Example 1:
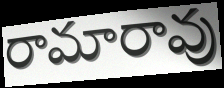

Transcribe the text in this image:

రామారావు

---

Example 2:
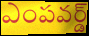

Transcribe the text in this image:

ఎంపవర్డ్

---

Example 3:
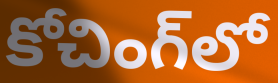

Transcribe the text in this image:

కోచింగ్‌లో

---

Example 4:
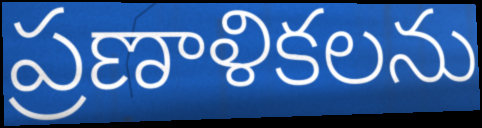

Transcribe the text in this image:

ప్రణాళికలను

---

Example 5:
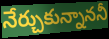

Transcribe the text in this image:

నేర్చుకున్నాననీ